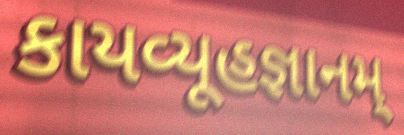
કાયવ્યૂહજ્ઞાનમ્